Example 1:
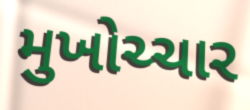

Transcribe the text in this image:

મુખોચ્ચાર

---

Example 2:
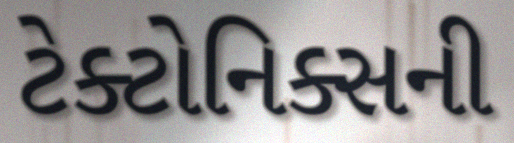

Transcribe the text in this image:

ટેક્ટોનિક્સની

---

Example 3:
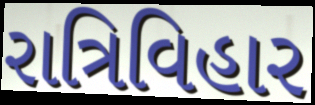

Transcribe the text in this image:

રાત્રિવિહાર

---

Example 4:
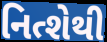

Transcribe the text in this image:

નિત્શેથી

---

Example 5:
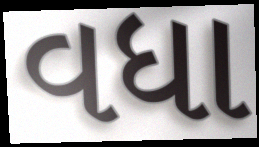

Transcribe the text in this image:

વધા